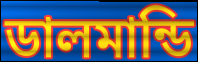
ডালমান্ডি